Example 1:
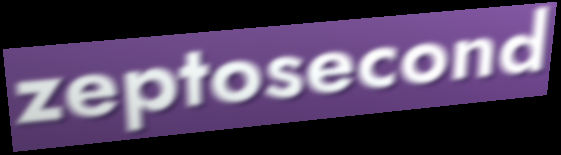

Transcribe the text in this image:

zeptosecond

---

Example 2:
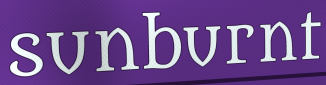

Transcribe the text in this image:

sunburnt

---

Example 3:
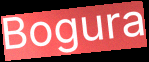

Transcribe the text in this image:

Bogura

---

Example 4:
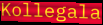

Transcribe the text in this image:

Kollegala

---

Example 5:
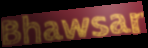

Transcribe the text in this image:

Bhawsar